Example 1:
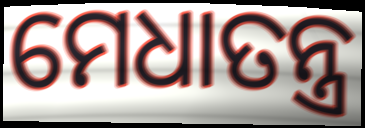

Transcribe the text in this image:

ମେଧାତନ୍ତ୍ର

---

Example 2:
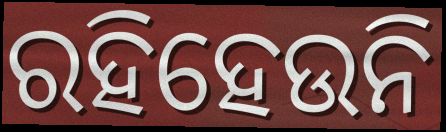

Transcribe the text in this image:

ରହିହେଉନି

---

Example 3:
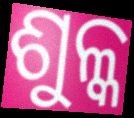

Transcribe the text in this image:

ଶୁଳ୍କ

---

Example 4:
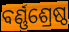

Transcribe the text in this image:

ବର୍ଣ୍ଣଶ୍ରେଷ୍ଠ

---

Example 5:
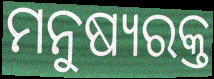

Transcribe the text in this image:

ମନୁଷ୍ଯରକ୍ତ